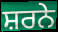
ਸ਼ਰਨੇ